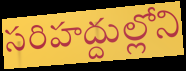
సరిహద్దుల్లోని